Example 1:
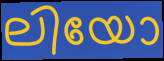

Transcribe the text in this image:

ലിയോ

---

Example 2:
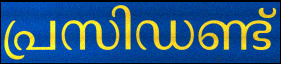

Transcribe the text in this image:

പ്രസിഡണ്ട്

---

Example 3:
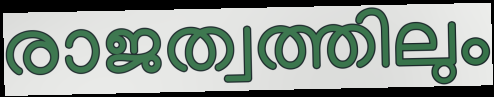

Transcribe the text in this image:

രാജത്വത്തിലും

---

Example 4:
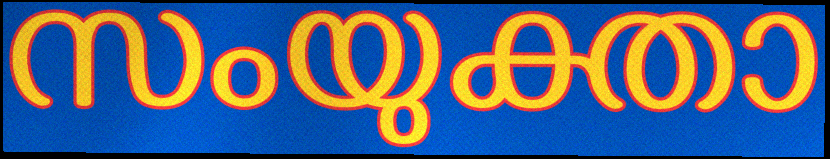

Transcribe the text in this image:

സംയുക്താ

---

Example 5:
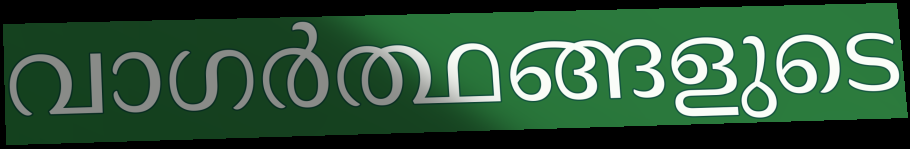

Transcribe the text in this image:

വാഗർത്ഥങ്ങളുടെ